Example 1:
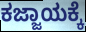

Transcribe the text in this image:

ಕಜ್ಜಾಯಕ್ಕೆ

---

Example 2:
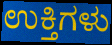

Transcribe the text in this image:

ಉಕ್ತಿಗಳು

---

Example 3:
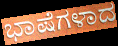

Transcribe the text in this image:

ಭಾಷೆಗಳಾದ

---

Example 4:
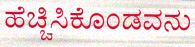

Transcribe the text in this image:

ಹೆಚ್ಚಿಸಿಕೊಂಡವನು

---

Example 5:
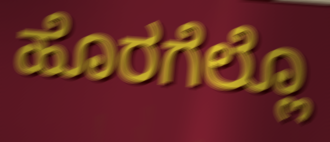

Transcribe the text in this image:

ಹೊರಗೆಲ್ಲೊ